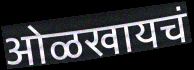
ओळखायचं